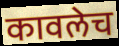
कावलेच